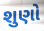
શુણો